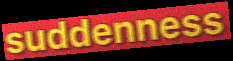
suddenness